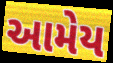
આમેય